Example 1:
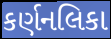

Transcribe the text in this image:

કર્ણનલિકા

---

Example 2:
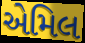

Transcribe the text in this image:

એમિલ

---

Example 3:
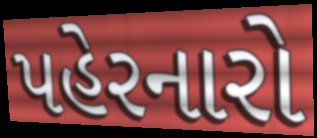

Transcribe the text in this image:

પહેરનારો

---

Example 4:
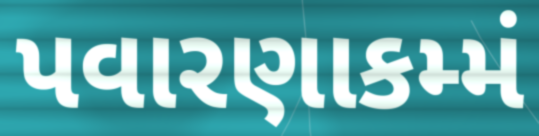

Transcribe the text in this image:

પવારણાકમ્મં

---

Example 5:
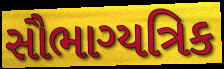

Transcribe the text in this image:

સૌભાગ્યત્રિક